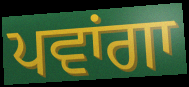
ਪਵਾਂਗਾ